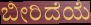
ಬೀರಿದೆಯೆ